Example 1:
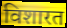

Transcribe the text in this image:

विशारत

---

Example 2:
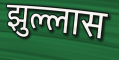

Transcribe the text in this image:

झुल्लास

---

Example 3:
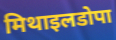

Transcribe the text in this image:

मिथाइलडोपा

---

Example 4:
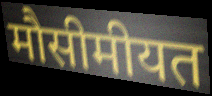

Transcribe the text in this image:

मौसीमीयत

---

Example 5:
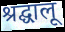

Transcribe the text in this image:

श्रद्घालू